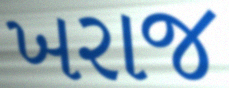
ખરાજ